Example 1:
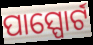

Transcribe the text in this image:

ପାସ୍ପୋର୍ଟ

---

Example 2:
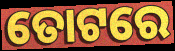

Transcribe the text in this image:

ତୋଟରେ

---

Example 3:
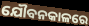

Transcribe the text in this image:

ଯୌବନକାଳରେ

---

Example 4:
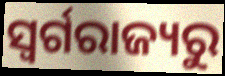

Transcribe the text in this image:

ସ୍ବର୍ଗରାଜ୍ୟରୁ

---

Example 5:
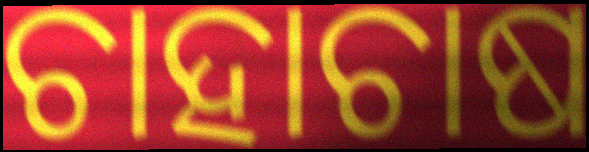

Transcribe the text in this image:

ଚାହାଚାଷ